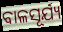
ବାଳସୂର୍ଯ୍ୟ